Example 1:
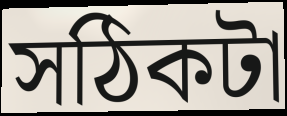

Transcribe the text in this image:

সঠিকটা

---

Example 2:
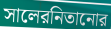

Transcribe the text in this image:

সালেরনিতানোর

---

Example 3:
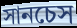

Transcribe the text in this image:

সানচেস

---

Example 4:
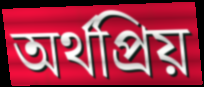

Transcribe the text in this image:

অর্থপ্রিয়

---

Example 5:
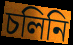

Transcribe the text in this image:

চলিনি